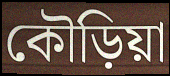
কৌড়িয়া